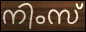
നിംസ്